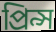
প্রিন্স